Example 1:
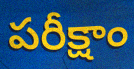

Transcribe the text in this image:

పరీక్షాం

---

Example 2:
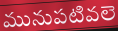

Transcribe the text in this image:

మునుపటివలె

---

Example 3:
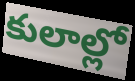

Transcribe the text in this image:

కులాల్లో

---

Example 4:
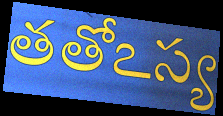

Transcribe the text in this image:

తతోఽస్య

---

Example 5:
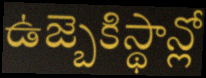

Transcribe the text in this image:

ఉజ్బెకిస్థాన్లో